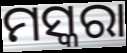
ମସ୍କରା